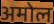
अमोल